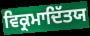
ਵਿਕ੍ਰਮਾਦਿੱਤਯ